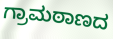
ಗ್ರಾಮಠಾಣದ